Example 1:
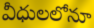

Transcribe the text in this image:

వీధులలోనూ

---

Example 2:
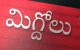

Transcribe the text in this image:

మిగ్దోలు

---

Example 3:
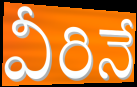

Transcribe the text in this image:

వీరినే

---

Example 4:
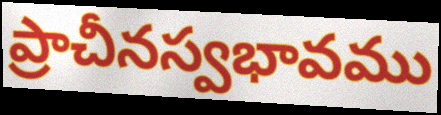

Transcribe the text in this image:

ప్రాచీనస్వభావము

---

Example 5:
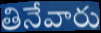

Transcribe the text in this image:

తినేవారు